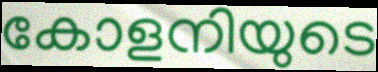
കോളനിയുടെ